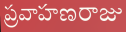
ప్రవాహణరాజు